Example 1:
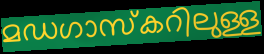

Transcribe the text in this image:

മഡഗാസ്കറിലുള്ള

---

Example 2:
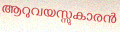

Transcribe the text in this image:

ആറുവയസ്സുകാരൻ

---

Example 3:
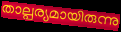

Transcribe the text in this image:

താല്പര്യമായിരുന്നു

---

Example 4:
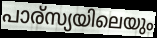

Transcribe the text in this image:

പാര്സ്യയിലെയും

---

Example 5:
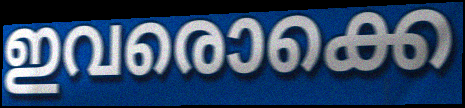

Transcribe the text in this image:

ഇവരൊക്കെ